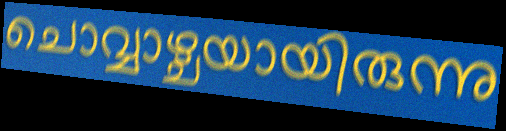
ചൊവ്വാഴ്ചയായിരുന്നു